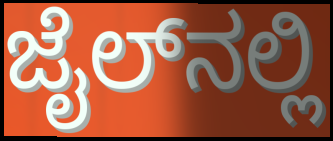
ಜೈಲ್‌ನಲ್ಲಿ